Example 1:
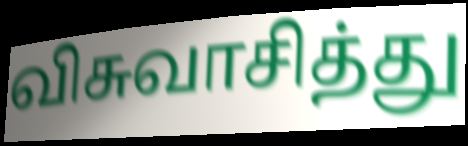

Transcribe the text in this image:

விசுவாசித்து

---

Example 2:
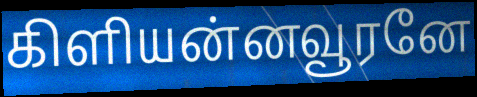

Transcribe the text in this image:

கிளியன்னவூரனே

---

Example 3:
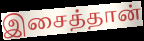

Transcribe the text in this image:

இசைத்தான்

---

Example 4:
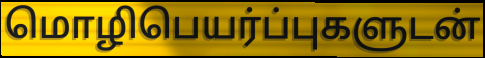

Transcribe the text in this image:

மொழிபெயர்ப்புகளுடன்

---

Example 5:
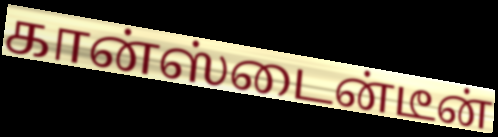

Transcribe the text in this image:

கான்ஸ்டைன்டீன்